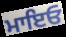
ਮਾਇਓ